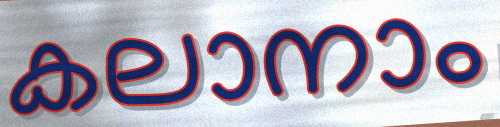
കലാനാം